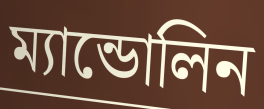
ম্যান্ডোলিন